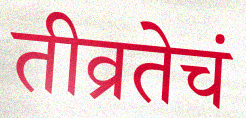
तीव्रतेचं